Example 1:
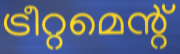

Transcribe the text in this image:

ട്രീറ്റമെന്റ്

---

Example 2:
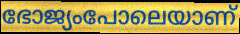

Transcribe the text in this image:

ഭോജ്യംപോലെയാണ്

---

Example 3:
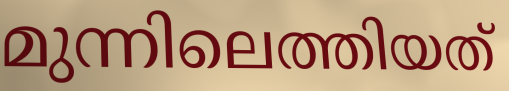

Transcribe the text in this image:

മുന്നിലെത്തിയത്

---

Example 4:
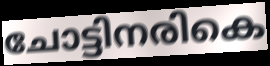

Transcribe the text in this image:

ചോട്ടിനരികെ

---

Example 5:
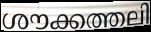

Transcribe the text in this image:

ശൗക്കത്തലി